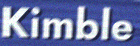
Kimble